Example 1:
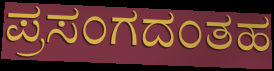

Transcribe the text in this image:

ಪ್ರಸಂಗದಂತಹ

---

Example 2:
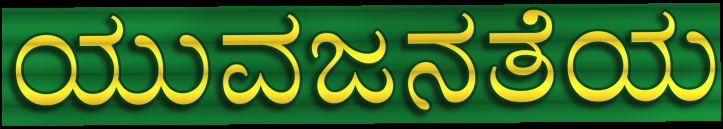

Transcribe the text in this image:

ಯುವಜನತೆಯ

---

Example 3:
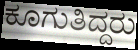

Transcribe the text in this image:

ಕೂಗುತಿದ್ದರು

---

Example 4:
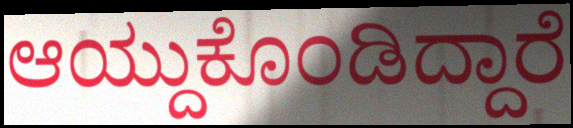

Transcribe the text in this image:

ಆಯ್ದುಕೊಂಡಿದ್ದಾರೆ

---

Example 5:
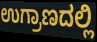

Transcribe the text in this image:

ಉಗ್ರಾಣದಲ್ಲಿ